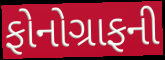
ફોનોગ્રાફની